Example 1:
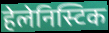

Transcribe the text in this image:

हेलेनिस्टिक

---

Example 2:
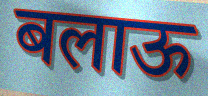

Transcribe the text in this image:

बलाऊ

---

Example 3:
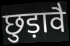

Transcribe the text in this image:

छुड़ावै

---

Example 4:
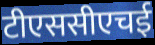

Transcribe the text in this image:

टीएससीएचई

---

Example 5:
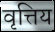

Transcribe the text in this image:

वृत्तिय